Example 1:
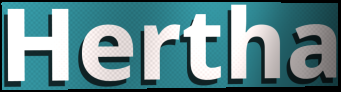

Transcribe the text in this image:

Hertha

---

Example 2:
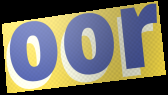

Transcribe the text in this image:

oor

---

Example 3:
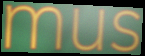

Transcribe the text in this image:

mus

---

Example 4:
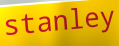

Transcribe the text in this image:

stanley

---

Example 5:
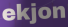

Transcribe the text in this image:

ekjon